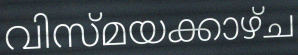
വിസ്മയക്കാഴ്ച